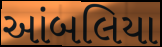
આંબલિયા